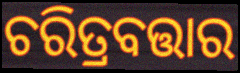
ଚରିତ୍ରବତ୍ତାର